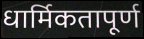
धार्मिकतापूर्ण